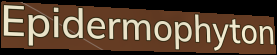
Epidermophyton